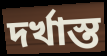
দৰ্খাস্ত